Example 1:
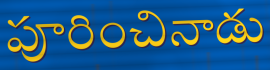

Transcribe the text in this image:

పూరించినాడు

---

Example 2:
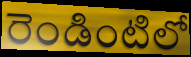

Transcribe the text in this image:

రెండింటిలో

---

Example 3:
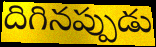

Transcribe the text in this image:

దిగినప్పుడు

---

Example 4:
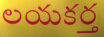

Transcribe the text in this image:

లయకర్త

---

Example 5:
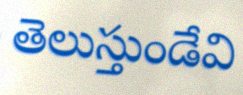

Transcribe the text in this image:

తెలుస్తుండేవి